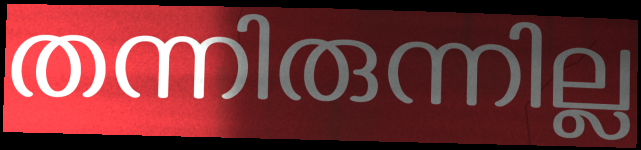
തന്നിരുന്നില്ല